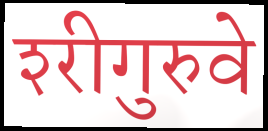
श्रीगुरुवे